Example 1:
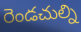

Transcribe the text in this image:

రెండచుల్ని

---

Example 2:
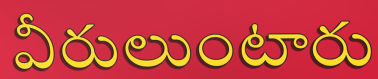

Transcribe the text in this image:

వీరులుంటారు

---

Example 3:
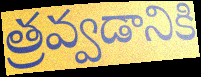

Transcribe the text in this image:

త్రవ్వడానికి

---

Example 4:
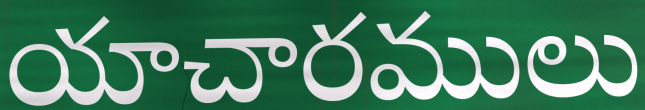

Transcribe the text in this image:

యాచారములు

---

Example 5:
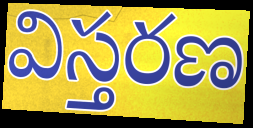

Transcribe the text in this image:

విస్తరణ